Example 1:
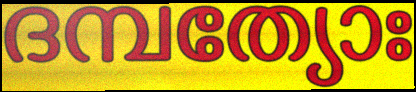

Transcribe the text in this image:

ദമ്പത്യോഃ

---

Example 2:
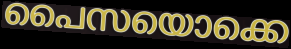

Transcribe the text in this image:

പൈസയൊക്കെ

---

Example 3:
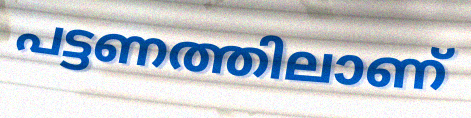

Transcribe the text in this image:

പട്ടണത്തിലാണ്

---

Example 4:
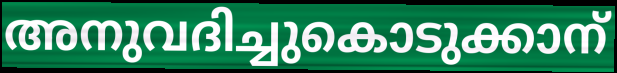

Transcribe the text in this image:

അനുവദിച്ചുകൊടുക്കാന്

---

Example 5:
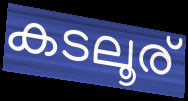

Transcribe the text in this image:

കടലൂര്